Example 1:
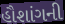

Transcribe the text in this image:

હૌશાંગની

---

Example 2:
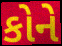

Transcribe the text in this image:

કોને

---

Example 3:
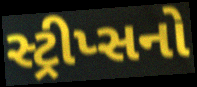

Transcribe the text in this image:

સ્ટ્રીપ્સનો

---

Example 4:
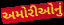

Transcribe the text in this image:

અમોરીઓનું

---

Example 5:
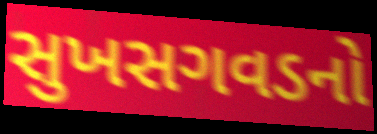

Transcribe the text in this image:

સુખસગવડનો